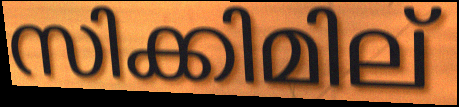
സിക്കിമില്